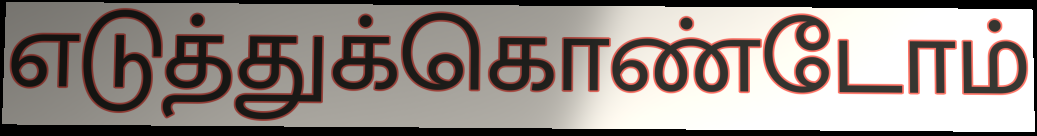
எடுத்துக்கொண்டோம்